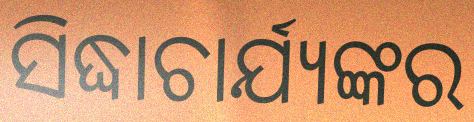
ସିଦ୍ଧାଚାର୍ଯ୍ୟଙ୍କର